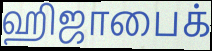
ஹிஜாபைக்